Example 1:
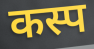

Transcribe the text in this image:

कस्प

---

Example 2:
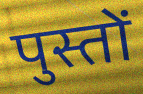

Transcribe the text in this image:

पुस्तों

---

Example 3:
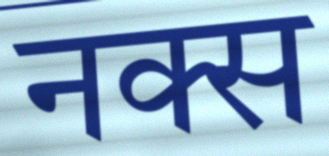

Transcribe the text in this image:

नक्स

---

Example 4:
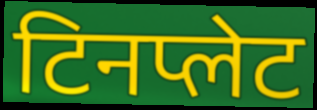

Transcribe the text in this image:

टिनप्लेट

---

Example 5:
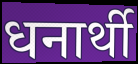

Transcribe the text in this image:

धनार्थी